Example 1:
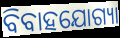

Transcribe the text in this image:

ବିବାହଯୋଗ୍ୟା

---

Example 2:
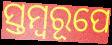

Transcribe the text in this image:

ସ୍ତମ୍ବରୂପେ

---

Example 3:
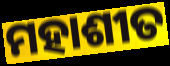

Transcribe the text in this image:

ମହାଶୀତ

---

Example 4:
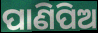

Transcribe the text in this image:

ପାଣିପିଅ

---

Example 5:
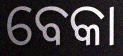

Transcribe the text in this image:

ବେକା